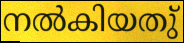
നൽകിയതു്